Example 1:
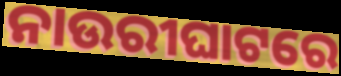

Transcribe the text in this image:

ନାଉରୀଘାଟରେ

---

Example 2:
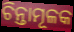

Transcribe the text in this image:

ଚିନ୍ତାମୂଳକ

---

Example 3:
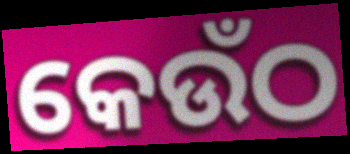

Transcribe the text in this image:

କେଉଁଠ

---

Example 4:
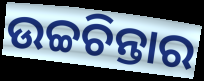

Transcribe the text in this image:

ଉଚ୍ଚଚିନ୍ତାର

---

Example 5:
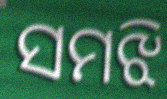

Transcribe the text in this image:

ସମଝି